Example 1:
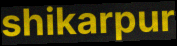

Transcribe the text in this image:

shikarpur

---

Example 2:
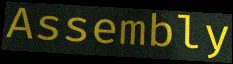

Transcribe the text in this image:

Assembly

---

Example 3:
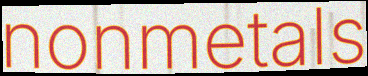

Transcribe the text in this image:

nonmetals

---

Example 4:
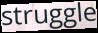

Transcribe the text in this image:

struggle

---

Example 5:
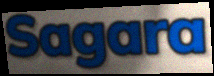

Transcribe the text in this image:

Sagara